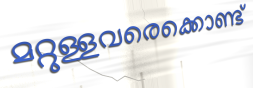
മറ്റുള്ളവരെക്കൊണ്ട്